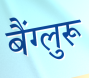
बैंग्लुरू